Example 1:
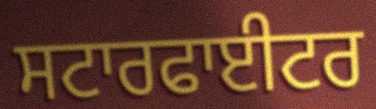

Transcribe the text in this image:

ਸਟਾਰਫਾਈਟਰ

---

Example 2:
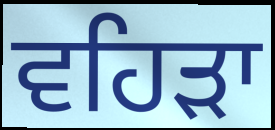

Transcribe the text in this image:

ਵਹਿੜਾ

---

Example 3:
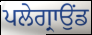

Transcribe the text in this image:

ਪਲੇਗ੍ਰਾਉਂਡ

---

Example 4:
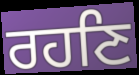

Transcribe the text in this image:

ਰਹਣਿ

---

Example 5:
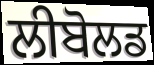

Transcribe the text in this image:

ਲੀਬੋਲਡ